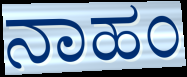
ನಾಹಂ